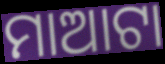
ମାଆଟା